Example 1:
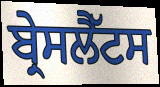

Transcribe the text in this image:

ਬ੍ਰੇਸਲੈੱਟਸ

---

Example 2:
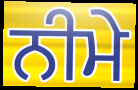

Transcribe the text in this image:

ਨੀਮੇ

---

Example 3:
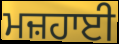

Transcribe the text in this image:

ਮਜ਼ਹਾਈ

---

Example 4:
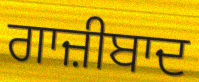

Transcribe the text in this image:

ਗਾਜ਼ੀਬਾਦ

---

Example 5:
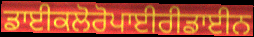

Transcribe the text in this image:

ਡਾਈਕਲੋਰੋਪਾਈਰੀਡਾਈਨ